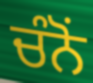
ਚੰਨੋਂ